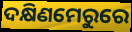
ଦକ୍ଷିଣମେରୁରେ